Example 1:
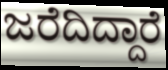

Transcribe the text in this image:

ಜರೆದಿದ್ದಾರೆ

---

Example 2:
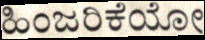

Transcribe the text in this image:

ಹಿಂಜರಿಕೆಯೋ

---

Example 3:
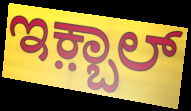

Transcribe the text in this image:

ಇಕ಼್ಬಾಲ್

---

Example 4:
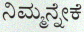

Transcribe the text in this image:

ನಿಮ್ಮನ್ನೇಕೆ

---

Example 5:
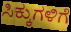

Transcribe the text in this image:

ಸಿಕ್ಕುಗಳಿಗೆ